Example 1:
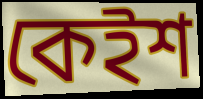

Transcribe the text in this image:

কেইশ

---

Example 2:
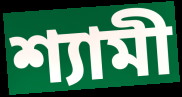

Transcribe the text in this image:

শ্যামী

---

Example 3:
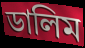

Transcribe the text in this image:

ডালিম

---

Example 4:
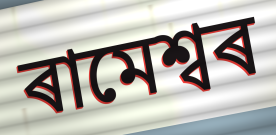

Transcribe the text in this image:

ৰামেশ্বৰ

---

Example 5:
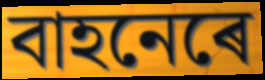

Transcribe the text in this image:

বাহনেৰে